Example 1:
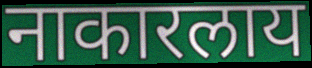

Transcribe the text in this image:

नाकारलाय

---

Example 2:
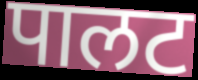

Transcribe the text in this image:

पालट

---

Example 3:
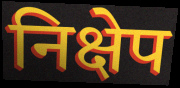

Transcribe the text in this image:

निक्षेप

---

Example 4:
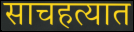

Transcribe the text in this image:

साचहत्यात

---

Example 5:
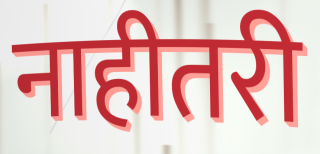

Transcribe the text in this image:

नाहीतरी